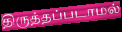
திருத்தப்படாமல்